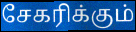
சேகரிக்கும்